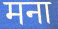
मना